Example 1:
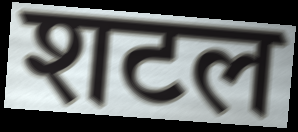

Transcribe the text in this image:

शटल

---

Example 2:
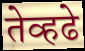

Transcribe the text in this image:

तेव्हढे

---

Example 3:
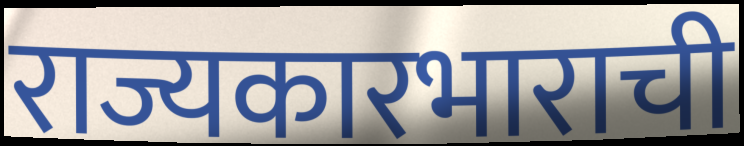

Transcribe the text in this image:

राज्यकारभाराची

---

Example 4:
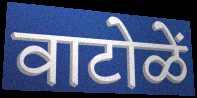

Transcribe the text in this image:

वाटोळें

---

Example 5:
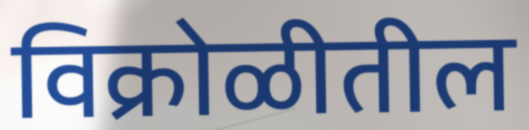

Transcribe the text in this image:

विक्रोळीतील